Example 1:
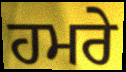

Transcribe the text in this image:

ਹਮਰੇ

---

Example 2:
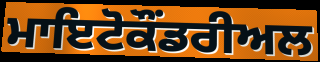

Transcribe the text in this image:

ਮਾਇਟੋਕੌਂਡਰੀਅਲ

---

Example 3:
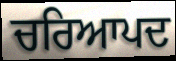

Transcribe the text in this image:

ਚਰਿਆਪਦ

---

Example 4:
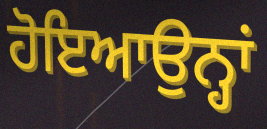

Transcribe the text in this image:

ਹੋਇਆਉਨ੍ਹਾਂ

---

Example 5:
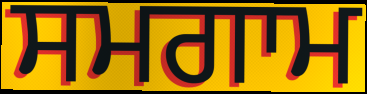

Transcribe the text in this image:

ਸਮਗਾਮ